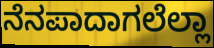
ನೆನಪಾದಾಗಲೆಲ್ಲಾ